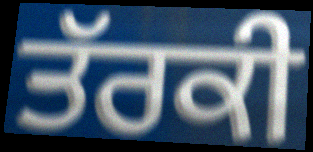
ਤੱਰਕੀ